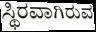
ಸ್ಥಿರವಾಗಿರುವ